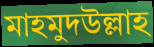
মাহমুদউল্লাহ